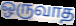
ஒருவாத